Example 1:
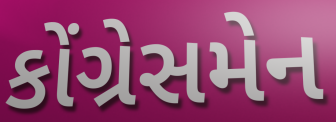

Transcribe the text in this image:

કોંગ્રેસમેન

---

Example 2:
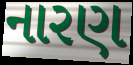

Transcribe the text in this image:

નારણ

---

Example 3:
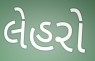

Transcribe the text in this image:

લેહરો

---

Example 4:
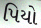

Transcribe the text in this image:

પિયો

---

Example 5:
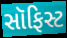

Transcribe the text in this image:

સૉફિસ્ટ